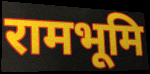
रामभूमि